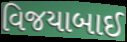
વિજયાબાઈ